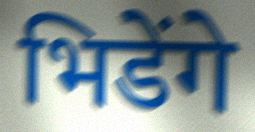
भिडेंगे